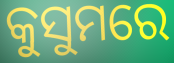
କୁସୁମରେ